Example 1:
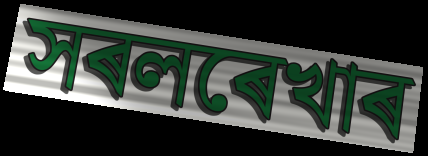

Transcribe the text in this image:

সৰলৰেখাৰ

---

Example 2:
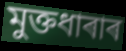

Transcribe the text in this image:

মুক্তধাৰাৰ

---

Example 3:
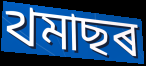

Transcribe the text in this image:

থমাছৰ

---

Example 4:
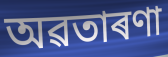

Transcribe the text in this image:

অৱতাৰণা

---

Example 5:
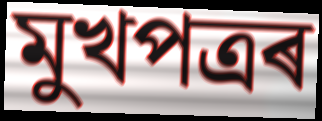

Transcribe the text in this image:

মুখপত্ৰৰ